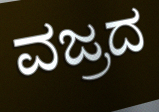
ವಜ್ರದ